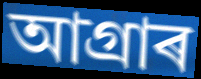
আগ্ৰাৰ